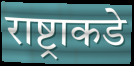
राष्ट्राकडे